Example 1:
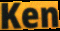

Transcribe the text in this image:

Ken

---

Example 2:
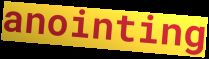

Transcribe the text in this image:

anointing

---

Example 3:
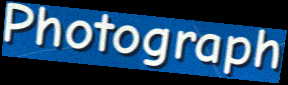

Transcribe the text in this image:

Photograph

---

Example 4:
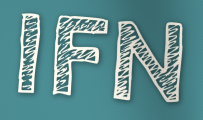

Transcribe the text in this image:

IFN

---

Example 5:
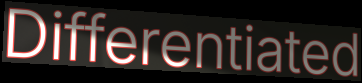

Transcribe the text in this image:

Differentiated